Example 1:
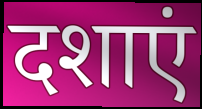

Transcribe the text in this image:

दशाएं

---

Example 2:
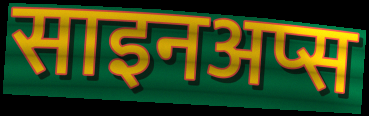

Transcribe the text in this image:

साइनअप्स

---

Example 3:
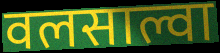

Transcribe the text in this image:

वलसाल्वा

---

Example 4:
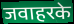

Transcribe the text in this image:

जवाहरके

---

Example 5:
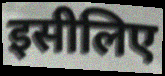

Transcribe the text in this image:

इसीलिए